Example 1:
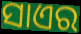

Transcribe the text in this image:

ସାଏର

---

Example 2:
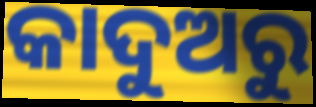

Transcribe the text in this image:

କାଦୁଅରୁ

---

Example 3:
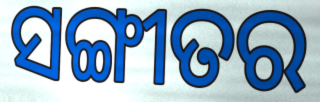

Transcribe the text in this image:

ସଙ୍ଗୀତର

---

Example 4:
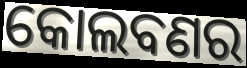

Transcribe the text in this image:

କୋଲବଣର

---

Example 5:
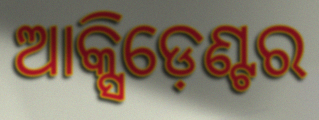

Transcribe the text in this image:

ଆକ୍ସିଡ଼େଣ୍ଟର